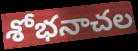
శోభనాచల